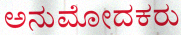
ಅನುಮೋದಕರು